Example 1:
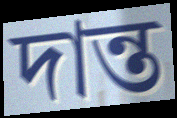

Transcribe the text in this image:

দান্ত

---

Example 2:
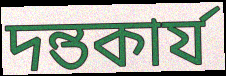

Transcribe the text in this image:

দন্তকার্য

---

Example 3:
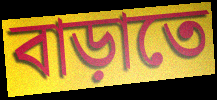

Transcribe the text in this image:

বাড়াতে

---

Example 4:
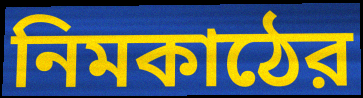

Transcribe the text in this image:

নিমকাঠের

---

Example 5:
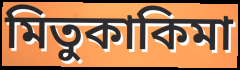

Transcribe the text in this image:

মিতুকাকিমা